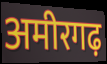
अमीरगढ़